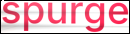
spurge